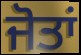
ਜੋਤਾਂ